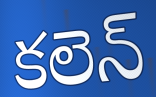
కలెన్